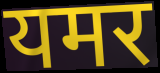
यमर